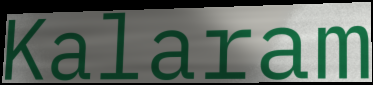
Kalaram